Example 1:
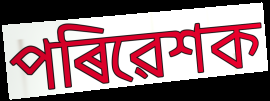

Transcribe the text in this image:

পৰিৱেশক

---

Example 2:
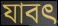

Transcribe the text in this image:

যাবৎ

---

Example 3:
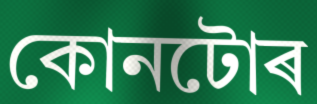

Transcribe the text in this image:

কোনটোৰ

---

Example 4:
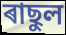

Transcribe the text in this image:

ৰাছুল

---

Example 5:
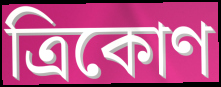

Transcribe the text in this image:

ত্ৰিকোণ